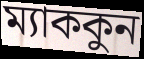
ম্যাককুন